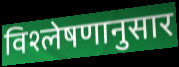
विश्लेषणानुसार